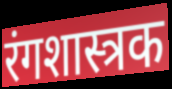
रंगशास्त्रक